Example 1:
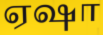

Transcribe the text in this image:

ஏஷா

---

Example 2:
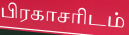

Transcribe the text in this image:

பிரகாசரிடம்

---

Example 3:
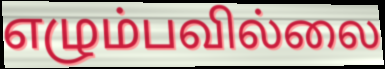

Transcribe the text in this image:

எழும்பவில்லை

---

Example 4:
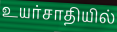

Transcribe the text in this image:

உயர்சாதியில்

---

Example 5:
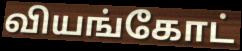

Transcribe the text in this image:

வியங்கோட்